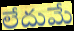
లేదుమే